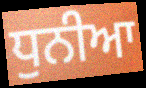
ਧੁਨੀਆ